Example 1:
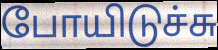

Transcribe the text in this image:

போயிடுச்சு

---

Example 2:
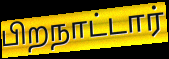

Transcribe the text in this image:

பிறநாட்டார்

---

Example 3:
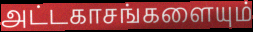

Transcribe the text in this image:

அட்டகாசங்களையும்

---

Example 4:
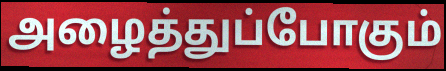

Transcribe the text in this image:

அழைத்துப்போகும்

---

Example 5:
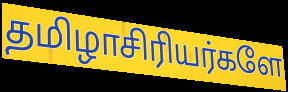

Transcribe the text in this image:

தமிழாசிரியர்களே